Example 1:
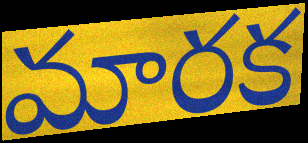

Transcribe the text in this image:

మారక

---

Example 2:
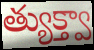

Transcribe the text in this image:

త్యుక్త్వా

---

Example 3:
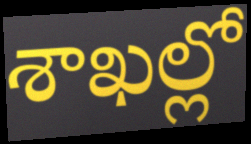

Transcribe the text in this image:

శాఖల్లో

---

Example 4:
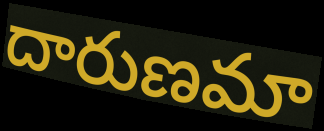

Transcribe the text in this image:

దారుణమా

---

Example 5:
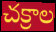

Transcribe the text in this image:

చక్రాల